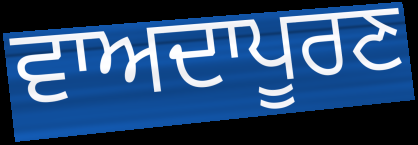
ਵਾਅਦਾਪੂਰਣ